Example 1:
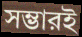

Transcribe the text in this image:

সম্ভারই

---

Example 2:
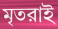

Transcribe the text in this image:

মৃতরাই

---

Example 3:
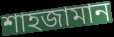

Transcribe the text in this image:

শাহজামান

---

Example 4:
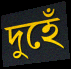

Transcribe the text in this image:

দুহেঁ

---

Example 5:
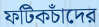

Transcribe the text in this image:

ফটিকচাঁদের